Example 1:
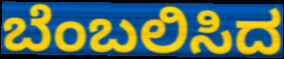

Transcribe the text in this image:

ಬೆಂಬಲಿಸಿದ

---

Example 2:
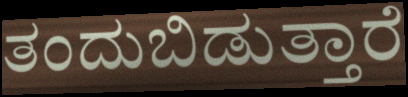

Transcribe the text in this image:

ತಂದುಬಿಡುತ್ತಾರೆ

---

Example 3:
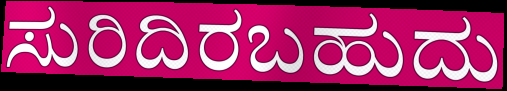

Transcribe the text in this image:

ಸುರಿದಿರಬಹುದು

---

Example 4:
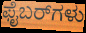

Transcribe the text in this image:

ಫೈಬರ್‌ಗಳು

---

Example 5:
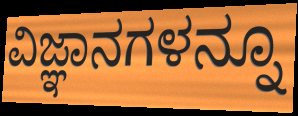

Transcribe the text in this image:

ವಿಜ್ಞಾನಗಳನ್ನೂ